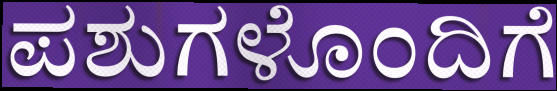
ಪಶುಗಳೊಂದಿಗೆ